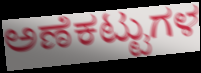
ಅಣೆಕಟ್ಟುಗಳ